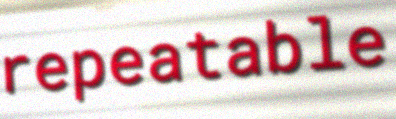
repeatable